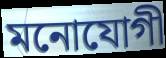
মনোযোগী